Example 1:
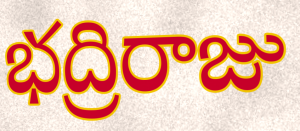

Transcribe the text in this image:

భద్రిరాజు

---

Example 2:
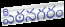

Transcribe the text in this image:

పీఠనగరం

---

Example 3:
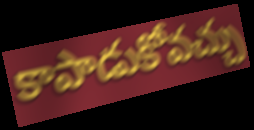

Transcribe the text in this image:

కాపాడుకోవచ్చు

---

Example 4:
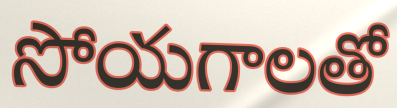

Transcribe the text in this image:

సోయగాలతో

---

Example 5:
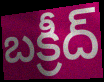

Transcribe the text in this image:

బక్రీద్